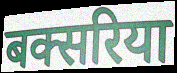
बक्सरिया